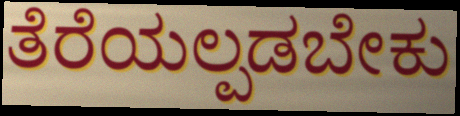
ತೆರೆಯಲ್ಪಡಬೇಕು